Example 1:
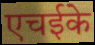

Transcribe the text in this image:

एचईके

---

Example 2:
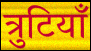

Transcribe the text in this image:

त्रुटियाँ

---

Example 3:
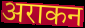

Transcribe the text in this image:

अराकन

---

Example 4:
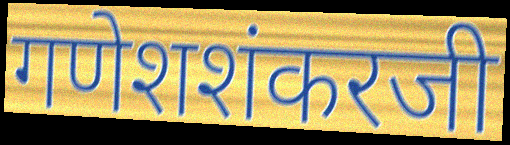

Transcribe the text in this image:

गणेशशंकरजी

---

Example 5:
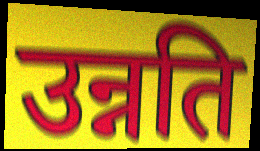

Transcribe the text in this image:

उन्नति